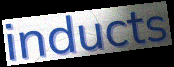
inducts